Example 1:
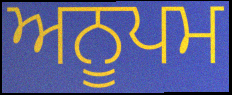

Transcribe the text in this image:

ਅਨੂਪਮ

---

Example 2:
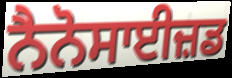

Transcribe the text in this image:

ਨੈਨੋਸਾਈਜ਼ਡ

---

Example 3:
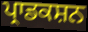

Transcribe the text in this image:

ਪ੍ਰਾਡਕਸ਼ਨ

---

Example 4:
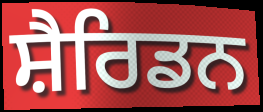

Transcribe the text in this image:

ਸ਼ੈਰਿਡਨ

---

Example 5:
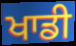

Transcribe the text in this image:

ਖਾਡੀ